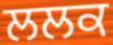
ਲਲਕ